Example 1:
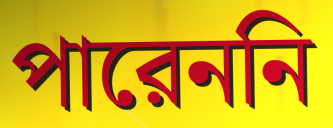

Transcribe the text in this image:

পারেননি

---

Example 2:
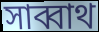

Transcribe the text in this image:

সাব্বাথ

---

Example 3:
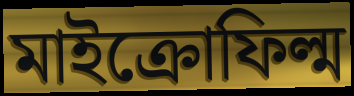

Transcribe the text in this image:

মাইক্রোফিল্ম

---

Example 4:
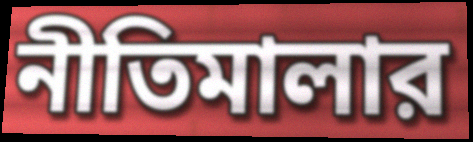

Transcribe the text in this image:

নীতিমালার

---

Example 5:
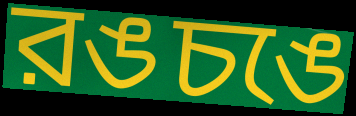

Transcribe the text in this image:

রঙচঙে